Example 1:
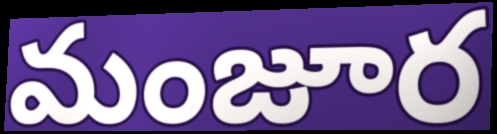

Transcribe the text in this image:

మంజూర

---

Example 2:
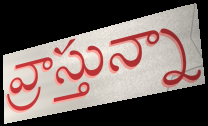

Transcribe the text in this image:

వ్రాస్తున్నా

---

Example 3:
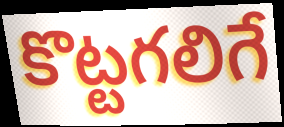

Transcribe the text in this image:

కొట్టగలిగే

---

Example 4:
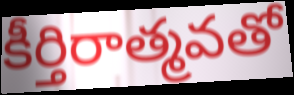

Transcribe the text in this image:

కీర్తిరాత్మవతో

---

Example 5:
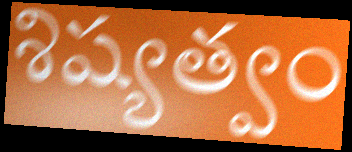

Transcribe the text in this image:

శిష్యత్వం